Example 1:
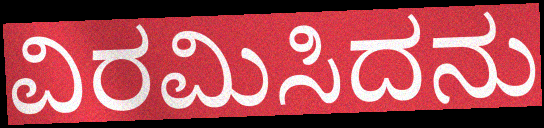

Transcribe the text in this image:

ವಿರಮಿಸಿದನು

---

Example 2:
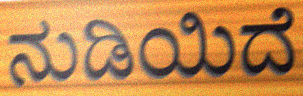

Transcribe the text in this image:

ನುಡಿಯಿದೆ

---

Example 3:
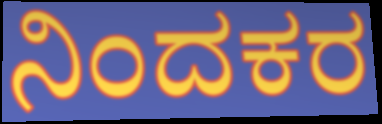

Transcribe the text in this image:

ನಿಂದಕರ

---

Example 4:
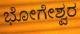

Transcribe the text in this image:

ಭೋಗೇಶ್ವರ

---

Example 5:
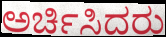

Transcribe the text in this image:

ಅರ್ಚಿಸಿದರು